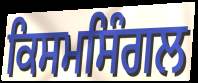
ਕਿਸਮਸਿੰਗਲ